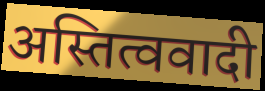
अस्तित्ववादी